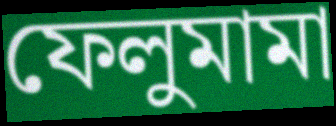
ফেলুমামা